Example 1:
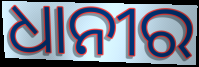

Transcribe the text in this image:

ଧାନୀର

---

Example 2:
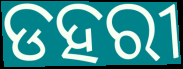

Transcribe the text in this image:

ଡହରୀ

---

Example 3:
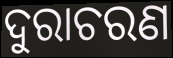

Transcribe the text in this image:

ଦୁରାଚରଣ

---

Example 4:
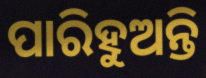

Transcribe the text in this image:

ପାରିହୁଅନ୍ତି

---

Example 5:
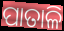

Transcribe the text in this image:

ପାତାଳି